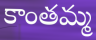
కాంతమ్మ